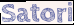
Satori